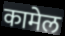
कामेल